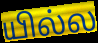
யில்ல